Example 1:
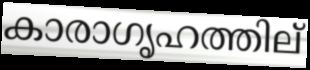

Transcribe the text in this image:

കാരാഗൃഹത്തില്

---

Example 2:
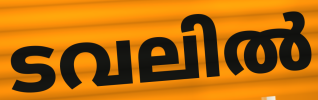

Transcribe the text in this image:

ടവലിൽ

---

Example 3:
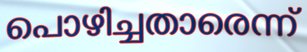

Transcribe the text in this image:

പൊഴിച്ചതാരെന്ന്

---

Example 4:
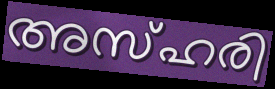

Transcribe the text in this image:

അസ്ഹരി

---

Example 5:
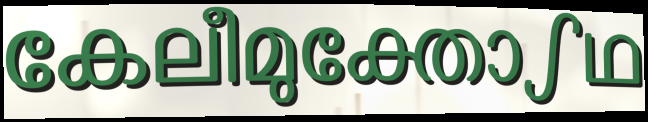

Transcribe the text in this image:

കേലീമുക്തോഽഥ